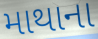
માથાના